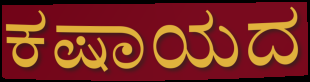
ಕಷಾಯದ